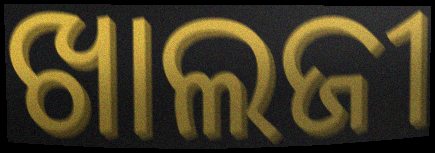
ଖାଲଜୀ